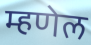
म्हणेल